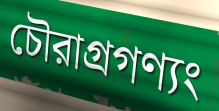
চৌরাগ্রগণ্যং